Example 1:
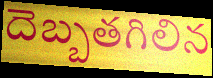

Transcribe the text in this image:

దెబ్బతగిలిన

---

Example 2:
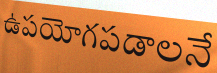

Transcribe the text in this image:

ఉపయోగపడాలనే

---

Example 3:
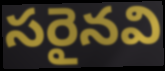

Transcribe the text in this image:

సరైనవి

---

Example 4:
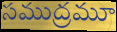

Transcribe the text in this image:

సముద్రమూ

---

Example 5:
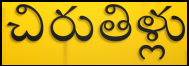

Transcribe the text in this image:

చిరుతిళ్లు